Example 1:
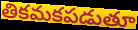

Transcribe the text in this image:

తికమకపడుతూ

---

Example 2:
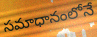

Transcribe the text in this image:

సమాధానంలోనే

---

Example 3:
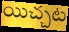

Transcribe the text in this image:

యిచ్చట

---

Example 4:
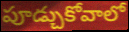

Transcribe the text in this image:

పూడ్చుకోవాలో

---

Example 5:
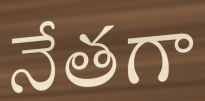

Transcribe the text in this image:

నేతగా